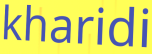
kharidi